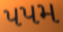
પપમ